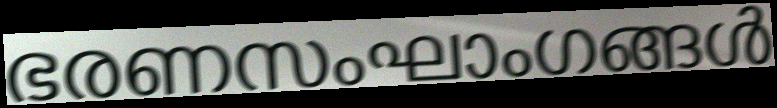
ഭരണസംഘാംഗങ്ങൾ